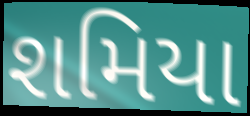
શમિયા